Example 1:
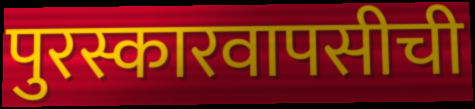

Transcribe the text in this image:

पुरस्कारवापसीची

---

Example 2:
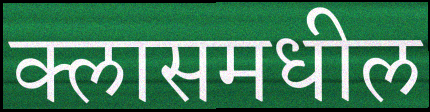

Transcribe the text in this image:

क्लासमधील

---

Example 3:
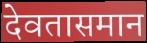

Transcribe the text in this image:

देवतासमान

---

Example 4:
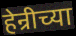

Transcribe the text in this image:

हेन्रीच्या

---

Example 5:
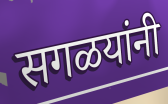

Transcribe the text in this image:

सगळयांनी